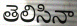
తెలిసినా